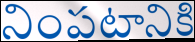
నింపటానికి